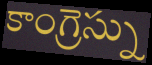
కాంగ్రెస్ను